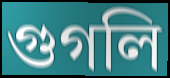
গুগলি